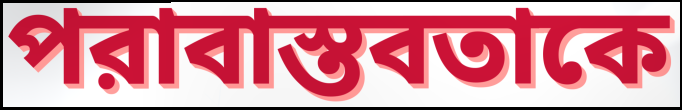
পরাবাস্তবতাকে